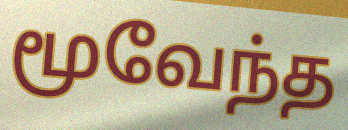
மூவேந்த